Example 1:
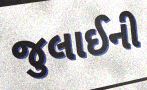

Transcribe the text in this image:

જુલાઈની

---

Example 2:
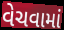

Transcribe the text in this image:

વેચવામાં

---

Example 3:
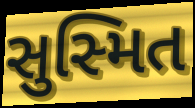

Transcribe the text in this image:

સુસ્મિત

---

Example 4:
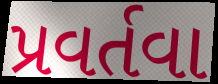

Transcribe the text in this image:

પ્રવર્તવા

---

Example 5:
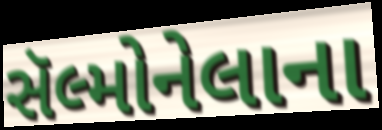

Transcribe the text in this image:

સૅલ્મોનેલાના